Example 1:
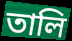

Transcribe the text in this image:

তালি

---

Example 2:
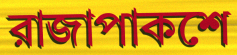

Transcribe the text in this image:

রাজাপাকশে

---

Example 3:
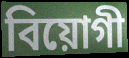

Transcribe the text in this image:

বিয়োগী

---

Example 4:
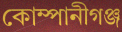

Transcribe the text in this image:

কোম্পানীগঞ্জ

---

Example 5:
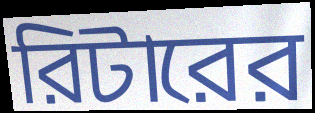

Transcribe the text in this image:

রিটারের